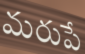
మరుపే